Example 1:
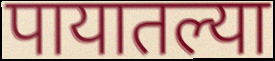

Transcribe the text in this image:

पायातल्या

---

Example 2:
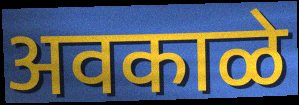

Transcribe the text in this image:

अवकाळे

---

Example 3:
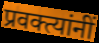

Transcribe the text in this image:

प्रवक्त्यांनीं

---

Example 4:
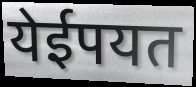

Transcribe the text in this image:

येईपयत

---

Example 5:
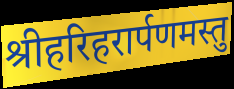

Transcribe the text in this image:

श्रीहरिहरार्पणमस्तु